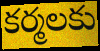
కర్మలకు